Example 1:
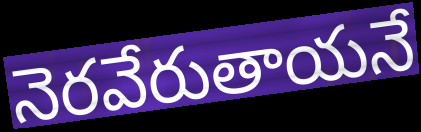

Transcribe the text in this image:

నెరవేరుతాయనే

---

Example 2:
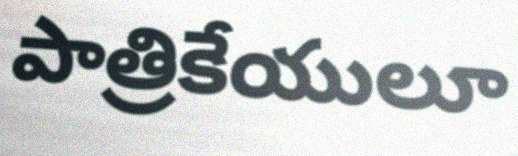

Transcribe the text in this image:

పాత్రికేయులూ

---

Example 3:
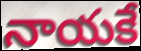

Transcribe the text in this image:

నాయకే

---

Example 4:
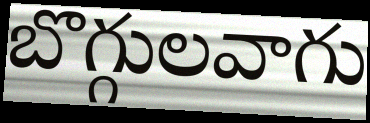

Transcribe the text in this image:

బొగ్గులవాగు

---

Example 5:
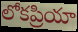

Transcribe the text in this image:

లోకప్రియా